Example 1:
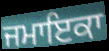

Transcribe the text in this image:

ਜਮਾਇਕਾ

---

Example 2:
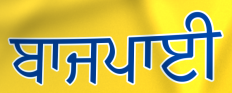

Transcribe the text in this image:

ਬਾਜਪਾਈ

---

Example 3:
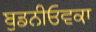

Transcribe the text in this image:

ਬੁਡਨੀਓਵਕਾ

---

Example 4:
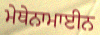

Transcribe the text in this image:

ਮੇਥੇਨਾਮਾਈਨ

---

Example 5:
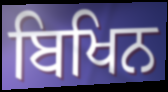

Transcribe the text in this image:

ਬਿਖਿਨ